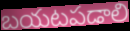
బయటపడాలి